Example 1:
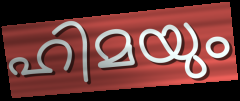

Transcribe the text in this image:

ഹിമയും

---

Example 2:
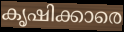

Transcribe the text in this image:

കൃഷിക്കാരെ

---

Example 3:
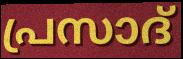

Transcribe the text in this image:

പ്രസാദ്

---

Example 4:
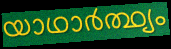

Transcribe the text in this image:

യാഥാർത്ഥ്യം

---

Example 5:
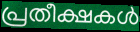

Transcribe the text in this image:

പ്രതീക്ഷകൾ